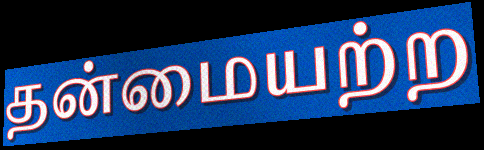
தன்மையற்ற